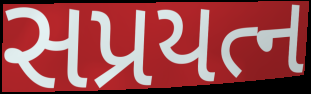
સપ્રયત્ન